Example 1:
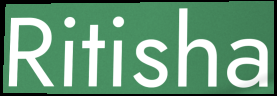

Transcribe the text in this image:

Ritisha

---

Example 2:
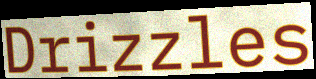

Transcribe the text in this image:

Drizzles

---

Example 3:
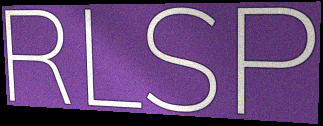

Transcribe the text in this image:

RLSP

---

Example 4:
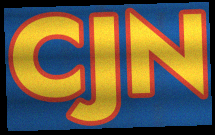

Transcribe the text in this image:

CJN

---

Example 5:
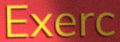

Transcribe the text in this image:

Exerc